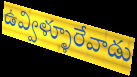
ఉవ్విళ్ళూరేవాడు